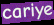
cariye